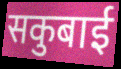
सकुबाई